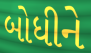
બોધીને